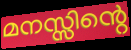
മനസ്സിന്റെ